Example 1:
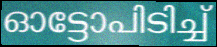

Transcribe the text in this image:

ഓട്ടോപിടിച്ച്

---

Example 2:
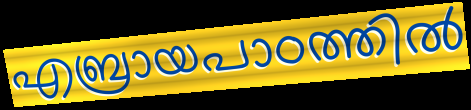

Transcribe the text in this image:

എബ്രായപാഠത്തിൽ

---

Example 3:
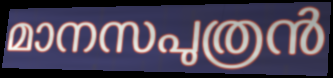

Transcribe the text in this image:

മാനസപുത്രൻ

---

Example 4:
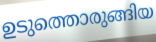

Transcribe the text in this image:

ഉടുത്തൊരുങ്ങിയ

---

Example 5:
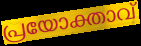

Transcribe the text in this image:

പ്രയോക്താവ്